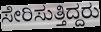
ಸೇರಿಸುತ್ತಿದ್ದರು